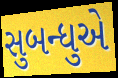
સુબન્ધુએ